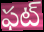
ఫట్